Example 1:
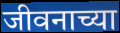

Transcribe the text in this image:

जीवनाच्या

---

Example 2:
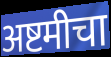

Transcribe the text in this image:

अष्टमीचा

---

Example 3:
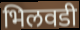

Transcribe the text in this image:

भिलवडी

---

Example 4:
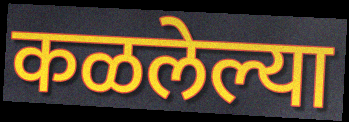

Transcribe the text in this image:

कळलेल्या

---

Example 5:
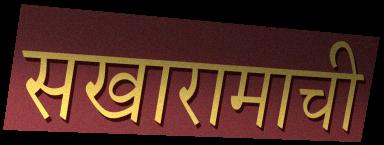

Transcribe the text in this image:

सखारामाची